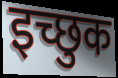
इच्छुक